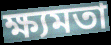
ক্ষ্যমতা